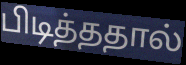
பிடித்ததால்